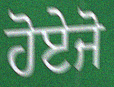
ਹੋਏਜੋ